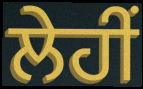
ਲੇਹੀਂ